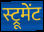
स्ट्रूमेंट